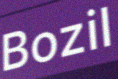
Bozil